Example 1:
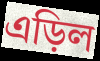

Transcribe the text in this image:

এড়িল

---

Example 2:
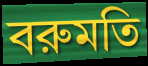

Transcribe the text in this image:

বরুমতি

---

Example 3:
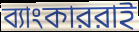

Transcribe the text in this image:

ব্যাংকাররাই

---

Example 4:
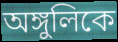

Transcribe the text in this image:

অঙ্গুলিকে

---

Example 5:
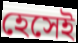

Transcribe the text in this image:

হেসেই